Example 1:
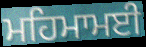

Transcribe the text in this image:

ਮਹਿਮਾਮਈ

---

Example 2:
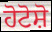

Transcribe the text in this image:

ਹੋਟੋਸ਼ੋ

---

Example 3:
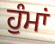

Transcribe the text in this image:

ਹੁੰਮਾਂ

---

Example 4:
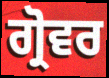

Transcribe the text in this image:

ਗ੍ਰੋਵਰ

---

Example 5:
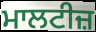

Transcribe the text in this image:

ਮਾਲਟੀਜ਼